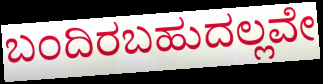
ಬಂದಿರಬಹುದಲ್ಲವೇ